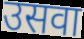
उसवा